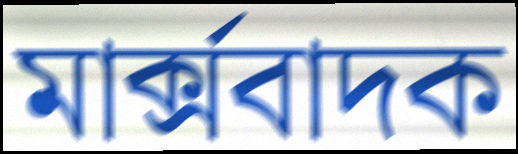
মাৰ্ক্সবাদক